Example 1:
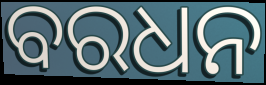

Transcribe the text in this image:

ବରଧନ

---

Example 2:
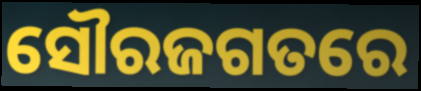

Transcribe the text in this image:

ସୌରଜଗତରେ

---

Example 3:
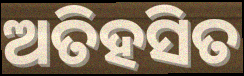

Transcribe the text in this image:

ଅତିହସିତ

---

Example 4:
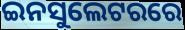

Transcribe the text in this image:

ଇନସୁଲେଟରରେ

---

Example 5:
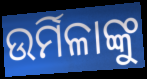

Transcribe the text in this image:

ଉର୍ମିଳାଙ୍କୁ